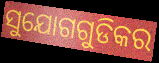
ସୁଯୋଗଗୁଡିକର